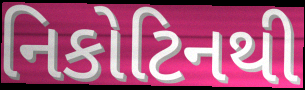
નિકોટિનથી